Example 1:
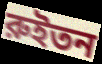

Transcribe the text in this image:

রুইতন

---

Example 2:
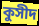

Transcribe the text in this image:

কুসীদ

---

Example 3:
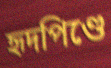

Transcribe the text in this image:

হৃদপিণ্ডে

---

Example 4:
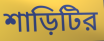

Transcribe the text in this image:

শাড়িটির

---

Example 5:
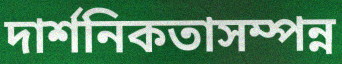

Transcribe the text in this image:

দার্শনিকতাসম্পন্ন